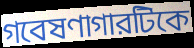
গবেষণাগারটিকে